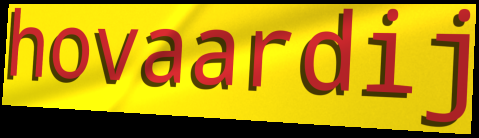
hovaardij